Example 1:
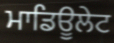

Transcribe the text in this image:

ਮਾਡਿਊਲੇਟ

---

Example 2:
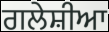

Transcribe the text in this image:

ਗਲੇਸ਼ੀਆ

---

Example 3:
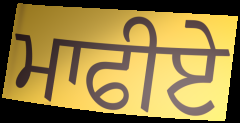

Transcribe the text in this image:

ਮਾਫੀਏ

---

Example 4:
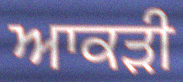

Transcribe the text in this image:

ਆਕੜੀ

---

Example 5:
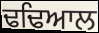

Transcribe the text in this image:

ਢਢਿਆਲ